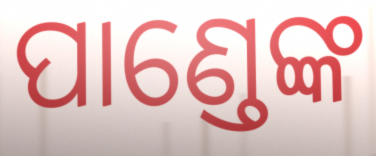
ପାଣ୍ଡେଙ୍କ